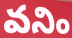
వనిం